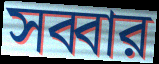
সব্বার